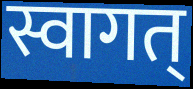
स्वागत्